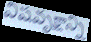
విషవృక్షాన్ని